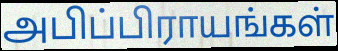
அபிப்பிராயங்கள்